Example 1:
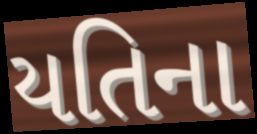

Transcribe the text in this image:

યતિના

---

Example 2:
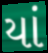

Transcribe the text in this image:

યાં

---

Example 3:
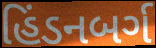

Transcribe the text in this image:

હિંડનબર્ગ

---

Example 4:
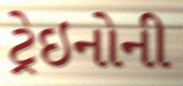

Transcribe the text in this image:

ટ્રેઇનોની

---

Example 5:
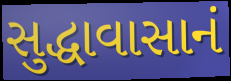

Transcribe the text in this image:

સુદ્ધાવાસાનં